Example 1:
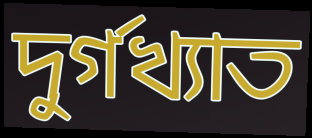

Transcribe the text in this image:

দুর্গখ্যাত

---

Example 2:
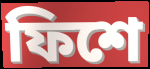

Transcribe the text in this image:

ফিশে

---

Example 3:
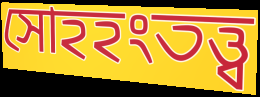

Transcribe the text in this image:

সোহহংতত্ত্ব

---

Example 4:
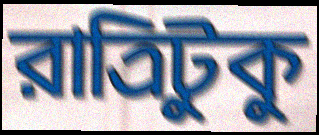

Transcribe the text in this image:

রাত্রিটুকু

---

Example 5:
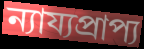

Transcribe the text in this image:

ন্যায্যপ্রাপ্য